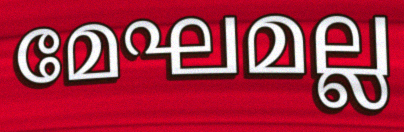
മേഘമല്ല